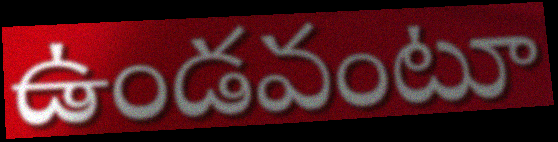
ఉండవంటూ